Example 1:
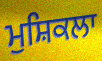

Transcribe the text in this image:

ਮੁਸ਼ਿਕਲਾ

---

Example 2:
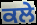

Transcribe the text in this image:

ਕਲੇ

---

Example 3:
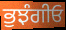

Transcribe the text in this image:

ਭੁਝੰਗੀਓ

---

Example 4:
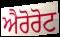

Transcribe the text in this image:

ਐਰੋਰੋਟ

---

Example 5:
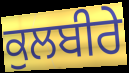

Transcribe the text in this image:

ਕੁਲਬੀਰੇ